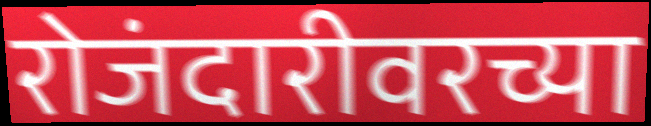
रोजंदारीवरच्या